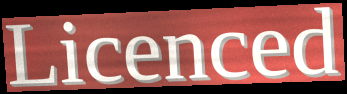
Licenced